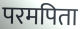
परमपिता